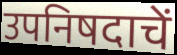
उपनिषदाचें